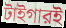
টাইগারই